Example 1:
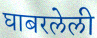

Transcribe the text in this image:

घाबरलेली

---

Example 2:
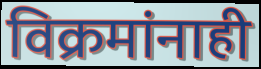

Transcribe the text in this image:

विक्रमांनाही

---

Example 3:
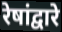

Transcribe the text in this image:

रेषांद्वारे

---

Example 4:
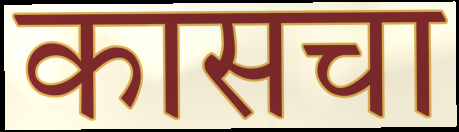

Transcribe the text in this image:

कासचा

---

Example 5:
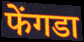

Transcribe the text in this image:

फेंगडा